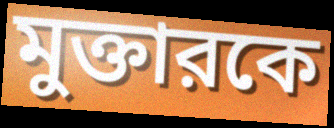
মুক্তারকে